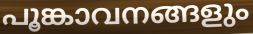
പൂങ്കാവനങ്ങളും